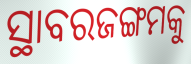
ସ୍ଥାବରଜଙ୍ଗମକୁ